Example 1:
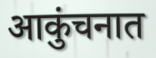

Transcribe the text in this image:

आकुंचनात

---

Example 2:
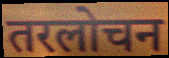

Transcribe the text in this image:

तरलोचन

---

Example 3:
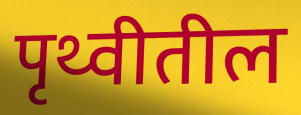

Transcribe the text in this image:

पृथ्वीतील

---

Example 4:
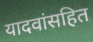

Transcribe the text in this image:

यादवांसहित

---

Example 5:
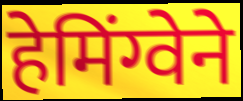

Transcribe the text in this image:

हेमिंग्वेने